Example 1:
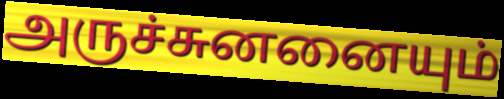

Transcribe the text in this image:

அருச்சுனனையும்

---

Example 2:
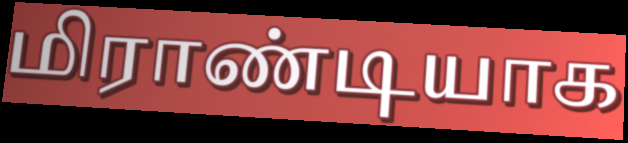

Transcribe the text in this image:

மிராண்டியாக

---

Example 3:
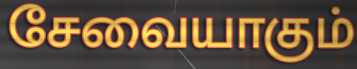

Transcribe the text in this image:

சேவையாகும்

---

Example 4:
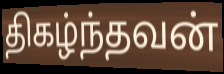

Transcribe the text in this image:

திகழ்ந்தவன்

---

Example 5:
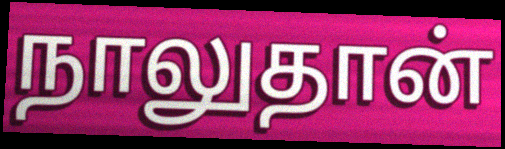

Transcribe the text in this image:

நாலுதான்